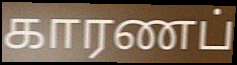
காரணப்